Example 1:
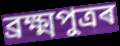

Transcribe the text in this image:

ব্ৰক্ষ্মপুত্ৰৰ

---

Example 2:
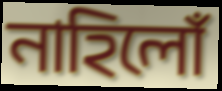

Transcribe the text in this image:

নাহিলোঁ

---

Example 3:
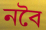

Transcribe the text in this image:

নবৈ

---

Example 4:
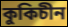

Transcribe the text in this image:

কুকিচীন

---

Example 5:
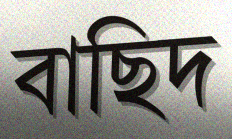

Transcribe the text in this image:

বাছিদ